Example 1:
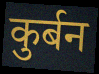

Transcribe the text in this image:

कुर्बन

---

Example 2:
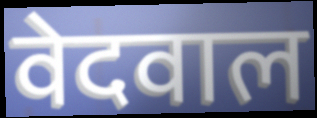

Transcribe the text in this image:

वेदवाल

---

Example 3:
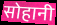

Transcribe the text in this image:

सोहानी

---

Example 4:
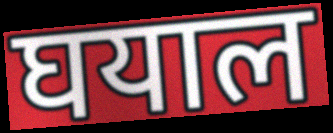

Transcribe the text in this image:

घयाल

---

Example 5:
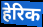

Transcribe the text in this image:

हेरिक